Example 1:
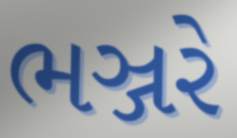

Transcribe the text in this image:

ભઞ્જરે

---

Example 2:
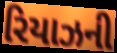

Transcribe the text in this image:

રિયાઝની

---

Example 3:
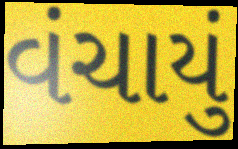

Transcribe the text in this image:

વંચાયું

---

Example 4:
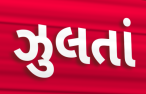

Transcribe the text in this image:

ઝુલતાં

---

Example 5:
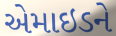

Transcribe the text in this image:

એમાઇડને